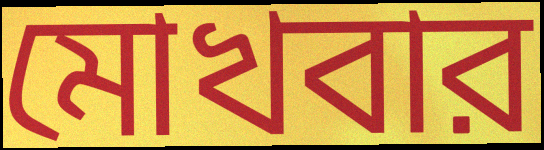
মোখবার